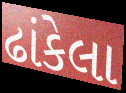
ઢાંકેલા